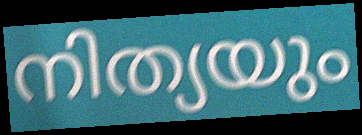
നിത്യയും